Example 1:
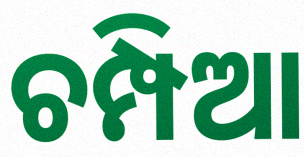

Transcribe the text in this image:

ଚମ୍ପିଆ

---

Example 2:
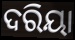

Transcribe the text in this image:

ଦରିୟା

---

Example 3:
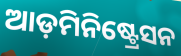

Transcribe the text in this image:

ଆଡ଼ମିନିଷ୍ଟ୍ରେସନ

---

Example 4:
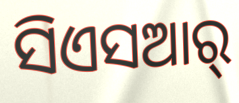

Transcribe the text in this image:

ସିଏସଆର୍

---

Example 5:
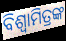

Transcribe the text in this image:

ବିଶ୍ବାମିତ୍ରଙ୍କ